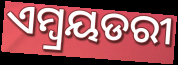
ଏମ୍ବ୍ରୟଡରୀ